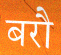
बरौ